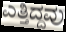
ಎತ್ತಿದ್ದವು